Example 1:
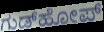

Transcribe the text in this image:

ಗುಡ್‌ಹೋಪ್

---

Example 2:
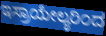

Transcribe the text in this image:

ಇಸ್ರಾಯೇಲ್ಯರಿಂದ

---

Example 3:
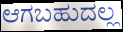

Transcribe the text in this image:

ಆಗಬಹುದಲ್ಲ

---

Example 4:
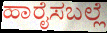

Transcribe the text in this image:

ಹಾರೈಸಬಲ್ಲೆ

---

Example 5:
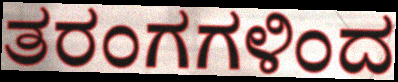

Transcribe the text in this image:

ತರಂಗಗಳಿಂದ